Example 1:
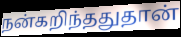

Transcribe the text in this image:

நன்கறிந்ததுதான்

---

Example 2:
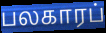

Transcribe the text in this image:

பலகாரப்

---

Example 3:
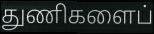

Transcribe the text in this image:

துணிகளைப்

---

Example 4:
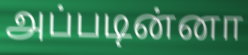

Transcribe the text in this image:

அப்படின்னா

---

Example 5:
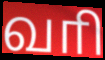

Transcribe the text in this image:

வரி